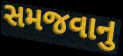
સમજવાનુ